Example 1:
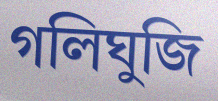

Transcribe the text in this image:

গলিঘুজি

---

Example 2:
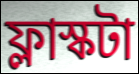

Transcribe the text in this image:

ফ্লাস্কটা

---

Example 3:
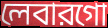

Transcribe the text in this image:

লেবারগো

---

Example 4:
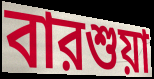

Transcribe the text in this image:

বারশুয়া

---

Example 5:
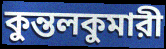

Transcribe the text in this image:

কুন্তলকুমারী